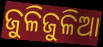
ଜୁଳିଜୁଳିଆ